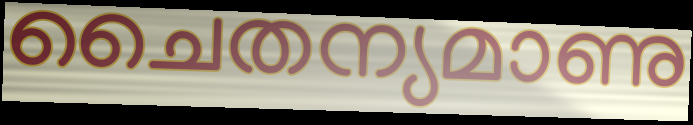
ചൈതന്യമാണു